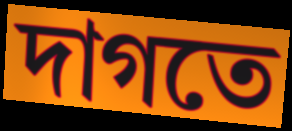
দাগতে